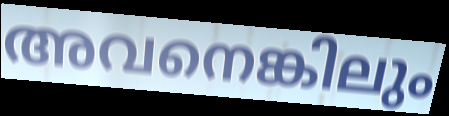
അവനെങ്കിലും